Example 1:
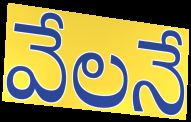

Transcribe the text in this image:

వేలనే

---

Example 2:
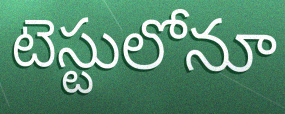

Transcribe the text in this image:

టెస్టులోనూ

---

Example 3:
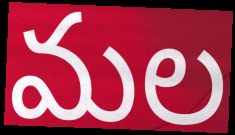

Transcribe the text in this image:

మల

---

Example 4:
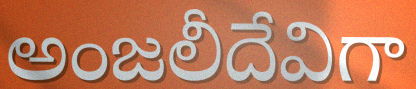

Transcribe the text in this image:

అంజలీదేవిగా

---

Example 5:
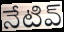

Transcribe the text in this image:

నేటివ్